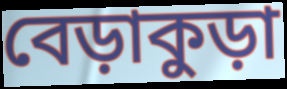
বেড়াকুড়া